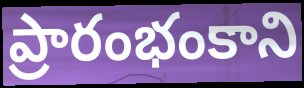
ప్రారంభంకాని